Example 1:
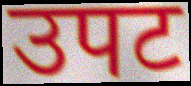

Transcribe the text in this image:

उपट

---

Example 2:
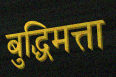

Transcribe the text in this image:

बुद्धिमत्ता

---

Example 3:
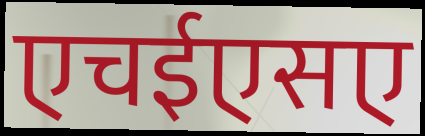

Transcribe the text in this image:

एचईएसए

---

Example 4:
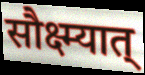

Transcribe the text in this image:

सौक्ष्म्यात्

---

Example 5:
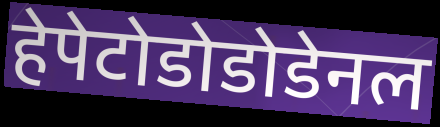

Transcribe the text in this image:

हेपेटोडोडोडेनल